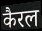
कैरल